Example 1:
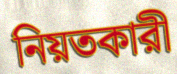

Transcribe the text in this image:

নিয়তকারী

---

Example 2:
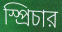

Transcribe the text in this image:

স্প্রিচার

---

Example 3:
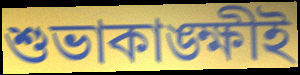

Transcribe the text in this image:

শুভাকাঙ্ক্ষীই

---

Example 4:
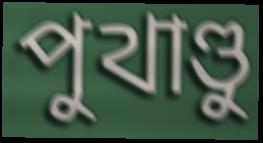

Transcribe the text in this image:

পুথাণ্ডু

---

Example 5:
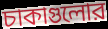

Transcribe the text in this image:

চাকাগুলোর